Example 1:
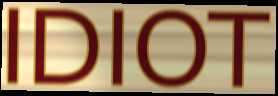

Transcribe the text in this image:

IDIOT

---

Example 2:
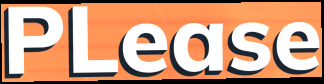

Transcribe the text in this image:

PLease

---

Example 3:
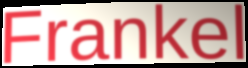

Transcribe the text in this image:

Frankel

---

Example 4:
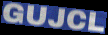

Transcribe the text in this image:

GUJCL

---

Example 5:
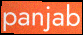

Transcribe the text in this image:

panjab